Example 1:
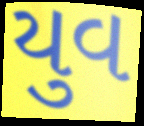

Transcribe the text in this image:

યુવ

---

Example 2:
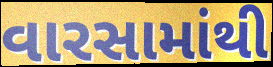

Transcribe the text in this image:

વારસામાંથી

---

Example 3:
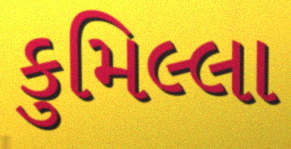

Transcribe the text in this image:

કુમિલ્લા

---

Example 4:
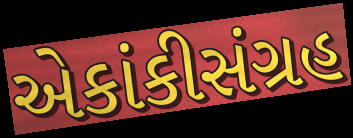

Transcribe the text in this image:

એકાંકીસંગ્રહ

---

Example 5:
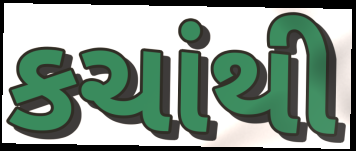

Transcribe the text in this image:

કચાંથી